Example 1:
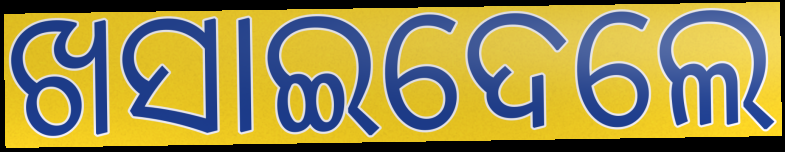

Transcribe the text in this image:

ଖସାଇଦେଲେ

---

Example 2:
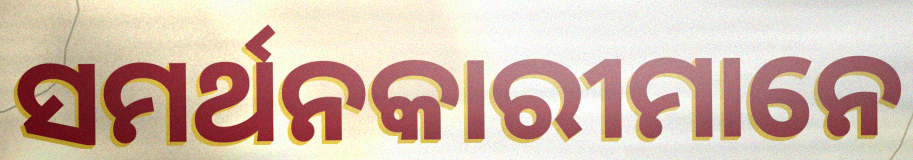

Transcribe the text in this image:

ସମର୍ଥନକାରୀମାନେ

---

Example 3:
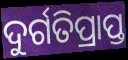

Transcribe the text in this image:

ଦୁର୍ଗତିପ୍ରାପ୍ତ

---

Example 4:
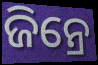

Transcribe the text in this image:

ଜିନ୍ରେ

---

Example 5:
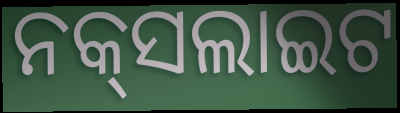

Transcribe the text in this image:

ନକ୍‌ସଲାଇଟ